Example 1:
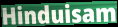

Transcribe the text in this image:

Hinduisam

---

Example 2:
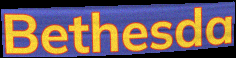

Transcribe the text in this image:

Bethesda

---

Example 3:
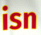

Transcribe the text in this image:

isn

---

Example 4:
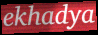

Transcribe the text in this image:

ekhadya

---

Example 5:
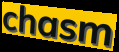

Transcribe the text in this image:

chasm